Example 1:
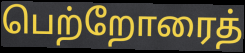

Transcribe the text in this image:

பெற்றோரைத்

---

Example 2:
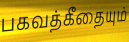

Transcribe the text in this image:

பகவத்கீதையும்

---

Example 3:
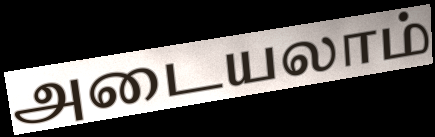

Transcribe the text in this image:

அடையலாம்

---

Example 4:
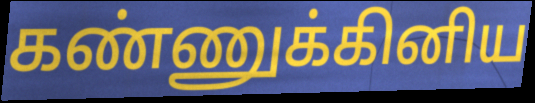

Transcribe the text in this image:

கண்ணுக்கினிய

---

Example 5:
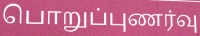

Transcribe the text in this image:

பொறுப்புணர்வு